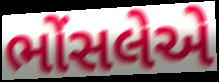
ભોંસલેએ